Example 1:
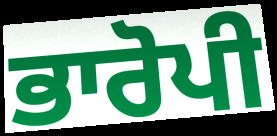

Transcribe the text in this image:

ਭਾਰੋਪੀ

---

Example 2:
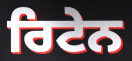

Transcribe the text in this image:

ਰਿਟੇਨ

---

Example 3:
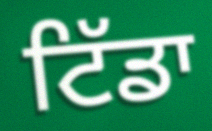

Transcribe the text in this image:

ਟਿੱਡਾ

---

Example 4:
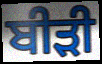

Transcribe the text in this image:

ਬੀਡ਼ੀ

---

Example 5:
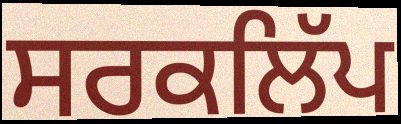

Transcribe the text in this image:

ਸਰਕਲਿੱਪ